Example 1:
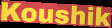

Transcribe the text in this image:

Koushik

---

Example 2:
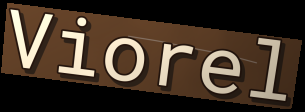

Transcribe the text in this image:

Viorel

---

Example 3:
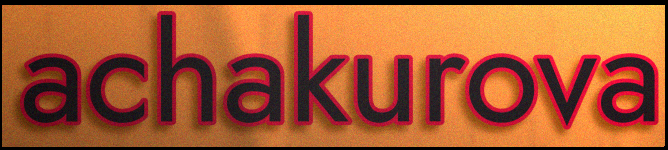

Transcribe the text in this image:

achakurova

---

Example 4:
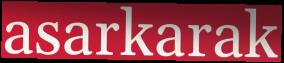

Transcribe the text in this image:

asarkarak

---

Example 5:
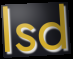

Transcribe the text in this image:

lsd